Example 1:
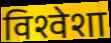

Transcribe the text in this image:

विश्वेशा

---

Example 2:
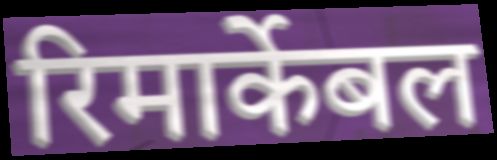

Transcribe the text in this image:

रिमार्केबल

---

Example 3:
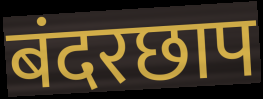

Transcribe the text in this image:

बंदरछाप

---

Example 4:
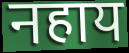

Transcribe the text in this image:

नहाय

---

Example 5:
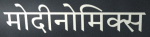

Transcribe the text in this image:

मोदीनोमिक्स